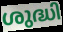
ശുദ്ധി